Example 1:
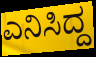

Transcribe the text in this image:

ಎನಿಸಿದ್ದ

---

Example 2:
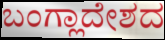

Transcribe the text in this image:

ಬಂಗ್ಲಾದೇಶದ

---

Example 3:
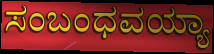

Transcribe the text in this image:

ಸಂಬಂಧವಯ್ಯಾ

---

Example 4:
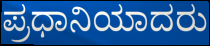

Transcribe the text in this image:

ಪ್ರಧಾನಿಯಾದರು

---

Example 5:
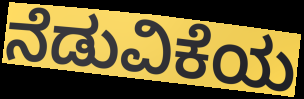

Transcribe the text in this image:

ನೆಡುವಿಕೆಯ